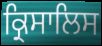
ਕ੍ਰਿਸਾਲਿਸ